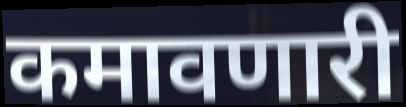
कमावणारी